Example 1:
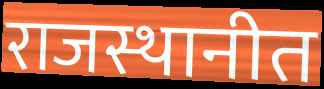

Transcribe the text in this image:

राजस्थानीत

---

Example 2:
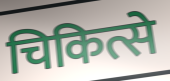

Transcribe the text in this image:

चिकित्से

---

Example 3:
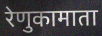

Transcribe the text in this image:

रेणुकामाता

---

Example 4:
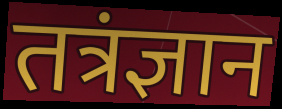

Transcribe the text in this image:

तत्रंज्ञान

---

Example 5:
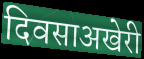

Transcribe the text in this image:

दिवसाअखेरी